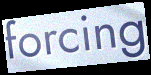
forcing